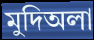
মুদিঅলা